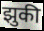
झुकी